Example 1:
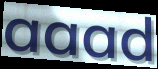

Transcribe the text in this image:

aaad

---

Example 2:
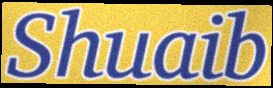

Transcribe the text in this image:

Shuaib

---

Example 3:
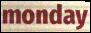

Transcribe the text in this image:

monday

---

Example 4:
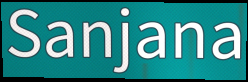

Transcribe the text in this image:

Sanjana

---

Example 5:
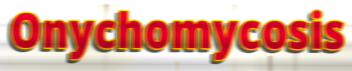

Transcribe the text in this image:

Onychomycosis